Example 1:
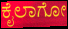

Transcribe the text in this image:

ಕೈಲಾಗೋ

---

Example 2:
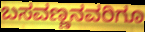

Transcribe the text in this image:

ಬಸವಣ್ಣನವರಿಗೂ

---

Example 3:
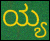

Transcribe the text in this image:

ಯ್ಯ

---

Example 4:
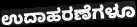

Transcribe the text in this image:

ಉದಾಹರಣೆಗಳೂ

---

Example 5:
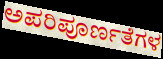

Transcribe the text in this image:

ಅಪರಿಪೂರ್ಣತೆಗಳ